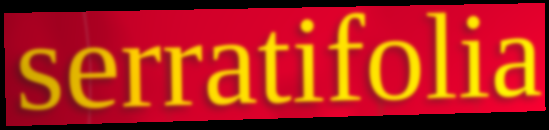
serratifolia